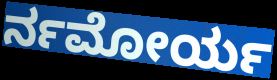
ರ್ನಮೋರ್ಯ